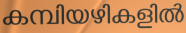
കമ്പിയഴികളിൽ